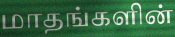
மாதங்களின்